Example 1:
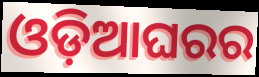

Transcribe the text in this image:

ଓଡ଼ିଆଘରର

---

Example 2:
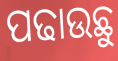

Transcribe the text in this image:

ପଢାଉଛୁ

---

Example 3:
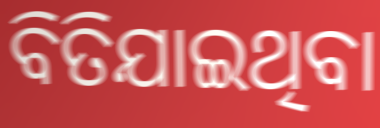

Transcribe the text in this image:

ବିତିଯାଇଥିବା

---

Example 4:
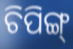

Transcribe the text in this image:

ଚିପିଙ୍ଗ୍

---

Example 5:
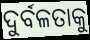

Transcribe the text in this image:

ଦୁର୍ବଳତାକୁ